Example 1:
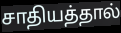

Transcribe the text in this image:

சாதியத்தால்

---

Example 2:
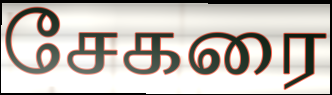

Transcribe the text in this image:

சேகரை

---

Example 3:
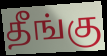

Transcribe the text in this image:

தீங்கு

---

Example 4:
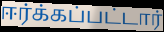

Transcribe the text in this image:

ஈர்க்கப்பட்டார்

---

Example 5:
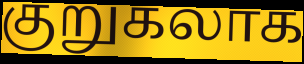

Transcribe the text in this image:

குறுகலாக